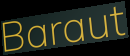
Baraut